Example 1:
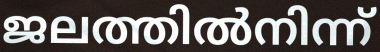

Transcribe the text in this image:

ജലത്തിൽനിന്ന്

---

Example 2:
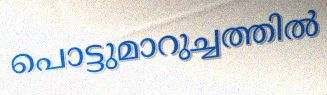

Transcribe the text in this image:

പൊട്ടുമാറുച്ചത്തിൽ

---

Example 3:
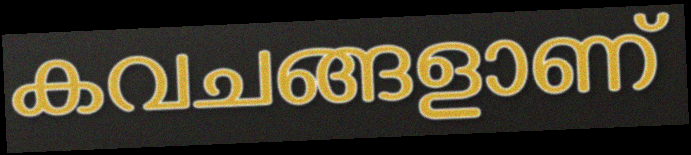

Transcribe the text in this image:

കവചങ്ങളാണ്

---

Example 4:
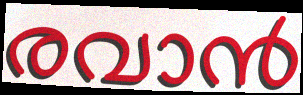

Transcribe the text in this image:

രവാൻ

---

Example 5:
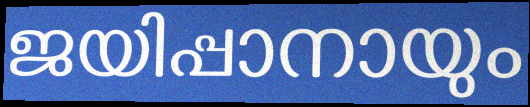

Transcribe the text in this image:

ജയിപ്പാനായും